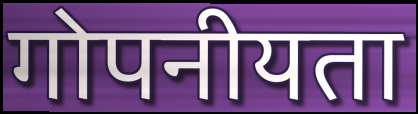
गोपनीयता